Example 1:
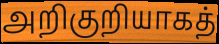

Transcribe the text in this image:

அறிகுறியாகத்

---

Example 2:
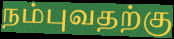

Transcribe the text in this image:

நம்புவதற்கு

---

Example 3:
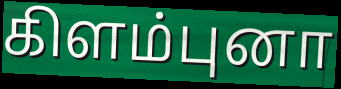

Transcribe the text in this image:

கிளம்புனா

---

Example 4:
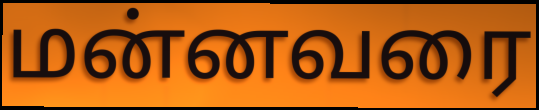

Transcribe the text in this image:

மன்னவரை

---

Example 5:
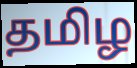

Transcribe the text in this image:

தமிழ